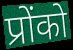
प्रोंको